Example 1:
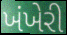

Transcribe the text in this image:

ખંખેરી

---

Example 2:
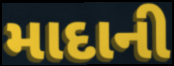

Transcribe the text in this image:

માદાની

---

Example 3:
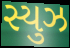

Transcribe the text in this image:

સ્યુઝ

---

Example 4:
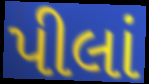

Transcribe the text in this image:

પીલાં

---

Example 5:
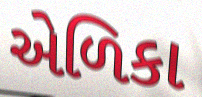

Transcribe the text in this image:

એળિકા